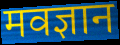
मवज्ञान